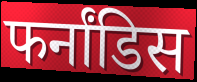
फर्नांडिस